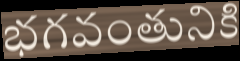
భగవంతునికి